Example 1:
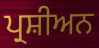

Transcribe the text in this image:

ਪ੍ਰਸ਼ੀਅਨ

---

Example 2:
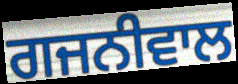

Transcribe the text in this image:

ਗਜਨੀਵਾਲ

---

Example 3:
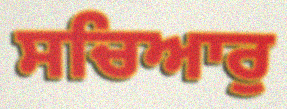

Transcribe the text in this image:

ਸਚਿਆਰੁ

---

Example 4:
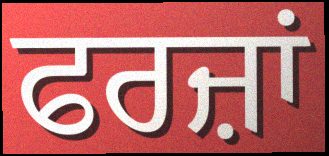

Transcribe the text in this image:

ਫਰਜ਼ਾਂ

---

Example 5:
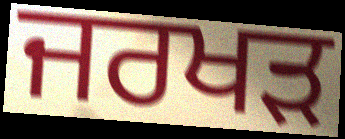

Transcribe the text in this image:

ਜਰਖੜ